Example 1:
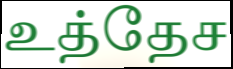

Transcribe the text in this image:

உத்தேச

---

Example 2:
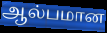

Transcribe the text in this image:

ஆல்பமான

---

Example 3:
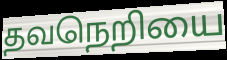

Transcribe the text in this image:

தவநெறியை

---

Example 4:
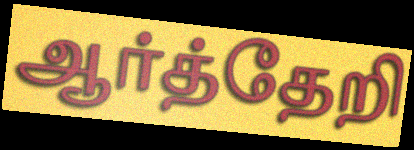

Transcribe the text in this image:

ஆர்த்தேறி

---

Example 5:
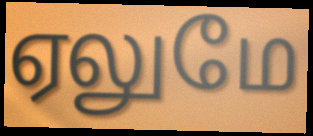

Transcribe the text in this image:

ஏலுமே